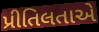
પ્રીતિલતાએ